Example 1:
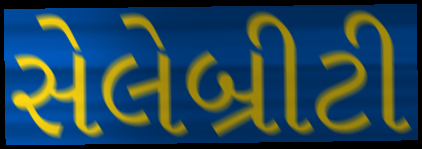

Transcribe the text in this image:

સેલેબ્રીટી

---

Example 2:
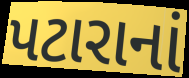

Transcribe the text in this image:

પટારાનાં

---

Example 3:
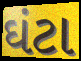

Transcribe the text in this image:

ઘંટા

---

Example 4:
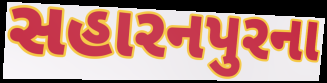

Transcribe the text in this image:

સહારનપુરના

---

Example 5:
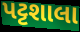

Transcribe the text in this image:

પટ્ટશાલા